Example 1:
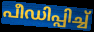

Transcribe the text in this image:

പീഡിപ്പിച്ച്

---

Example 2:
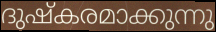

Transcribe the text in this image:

ദുഷ്കരമാക്കുന്നു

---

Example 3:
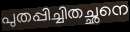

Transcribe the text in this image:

പുതപ്പിച്ചിതച്ഛനെ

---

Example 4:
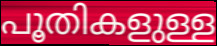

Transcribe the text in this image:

പൂതികളുള്ള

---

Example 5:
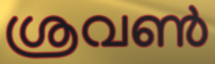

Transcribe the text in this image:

ശ്രവൺ